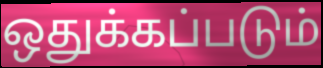
ஒதுக்கப்படும்